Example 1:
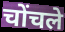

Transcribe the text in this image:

चोंचले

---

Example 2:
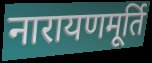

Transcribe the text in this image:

नारायणमूर्ति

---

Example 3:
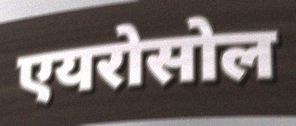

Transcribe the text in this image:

एयरोसोल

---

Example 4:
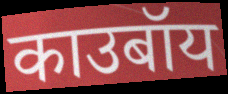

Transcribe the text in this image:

काउबॉय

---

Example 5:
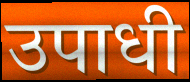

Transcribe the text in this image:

उपाधी